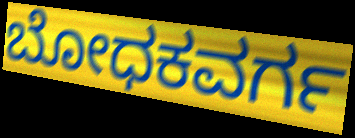
ಬೋಧಕವರ್ಗ